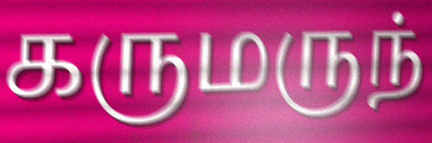
கருமருந்